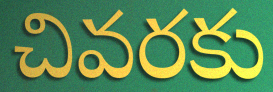
చివరకు